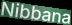
Nibbana